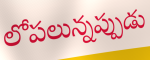
లోపలున్నప్పుడు